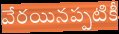
వేరయినప్పటికీ